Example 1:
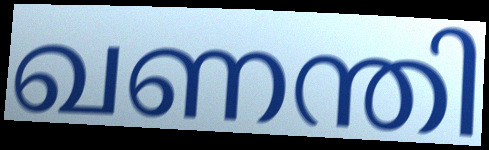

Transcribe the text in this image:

ഖണന്തി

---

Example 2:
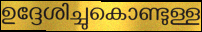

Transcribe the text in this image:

ഉദ്ദേശിച്ചുകൊണ്ടുള്ള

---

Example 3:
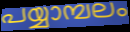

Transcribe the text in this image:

പയ്യാമ്പലം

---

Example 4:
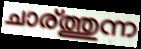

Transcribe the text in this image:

ചാര്ത്തുന്ന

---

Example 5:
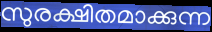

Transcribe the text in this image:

സുരക്ഷിതമാക്കുന്ന